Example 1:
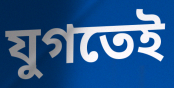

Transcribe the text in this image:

যুগতেই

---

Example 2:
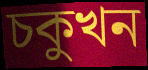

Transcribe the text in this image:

চকুখন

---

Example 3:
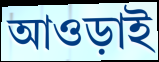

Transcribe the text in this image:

আওড়াই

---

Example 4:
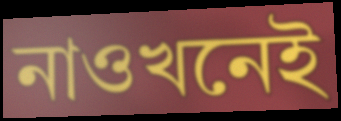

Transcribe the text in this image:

নাওখনেই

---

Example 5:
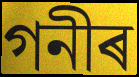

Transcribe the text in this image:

গনীৰ